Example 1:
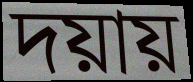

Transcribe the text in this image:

দয়ায়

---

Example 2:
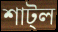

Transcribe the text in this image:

শাট্ল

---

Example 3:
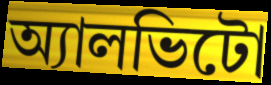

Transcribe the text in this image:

অ্যালভিটো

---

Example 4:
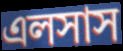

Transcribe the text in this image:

এলসাস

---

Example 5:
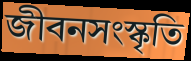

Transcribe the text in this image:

জীবনসংস্কৃতি